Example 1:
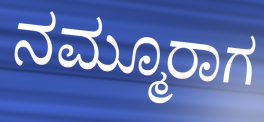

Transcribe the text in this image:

ನಮ್ಮೂರಾಗ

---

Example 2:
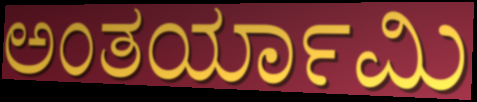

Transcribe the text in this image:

ಅಂತರ್ಯಾಮಿ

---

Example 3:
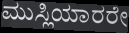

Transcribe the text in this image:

ಮುಸ್ಲಿಯಾರರೇ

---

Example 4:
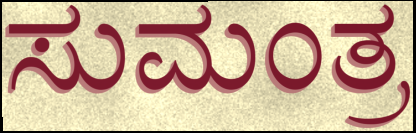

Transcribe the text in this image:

ಸುಮಂತ್ರ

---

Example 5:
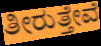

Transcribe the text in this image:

ತೀರುತ್ತೇವೆ